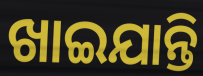
ଖାଇଯାନ୍ତି